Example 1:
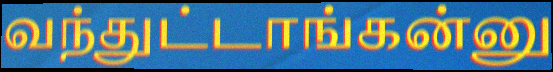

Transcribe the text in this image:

வந்துட்டாங்கன்னு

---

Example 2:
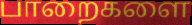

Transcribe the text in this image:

பாறைகளை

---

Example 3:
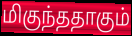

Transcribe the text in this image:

மிகுந்ததாகும்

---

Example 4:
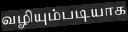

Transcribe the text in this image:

வழியும்படியாக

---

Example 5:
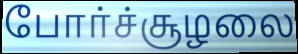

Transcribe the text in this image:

போர்ச்சூழலை